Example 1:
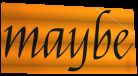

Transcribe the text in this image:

maybe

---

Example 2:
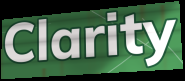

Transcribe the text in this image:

Clarity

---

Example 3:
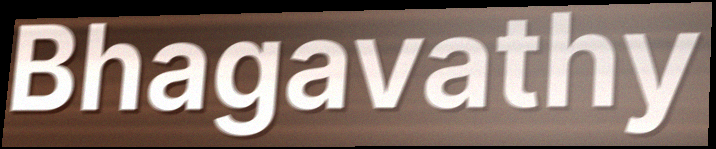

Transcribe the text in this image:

Bhagavathy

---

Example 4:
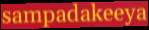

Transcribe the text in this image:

sampadakeeya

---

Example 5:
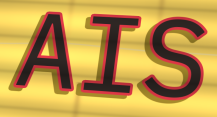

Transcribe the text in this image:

AIS